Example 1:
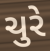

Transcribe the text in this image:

ચુરે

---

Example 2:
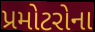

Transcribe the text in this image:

પ્રમોટરોના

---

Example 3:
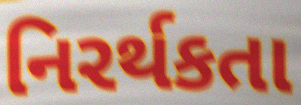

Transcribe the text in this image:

નિરર્થકતા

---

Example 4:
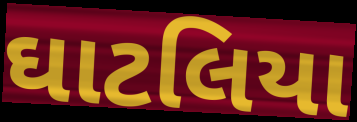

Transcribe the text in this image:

ઘાટલિયા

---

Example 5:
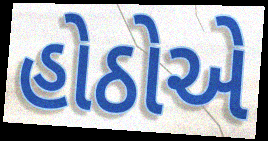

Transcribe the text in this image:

હોઠોએ